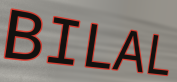
BILAL